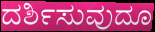
ದರ್ಶಿಸುವುದೂ